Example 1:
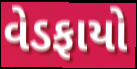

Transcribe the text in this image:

વેડફાયો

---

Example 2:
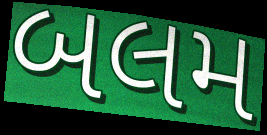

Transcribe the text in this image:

બલમ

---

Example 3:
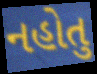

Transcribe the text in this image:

નહોતુ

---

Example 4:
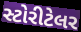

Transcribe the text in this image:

સ્ટોરીટેલર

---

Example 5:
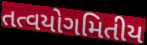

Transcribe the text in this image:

તત્વયોગમિતીય